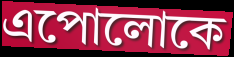
এপোলোকে